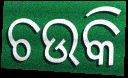
ଚଉକି